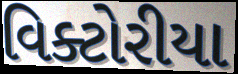
વિક્ટોરીયા